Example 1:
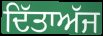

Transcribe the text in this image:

ਦਿੱਤਾਅੱਜ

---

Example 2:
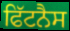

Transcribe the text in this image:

ਫਿੱਟਨੈਸ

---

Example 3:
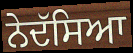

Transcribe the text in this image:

ਨੇਦੱਸਿਆ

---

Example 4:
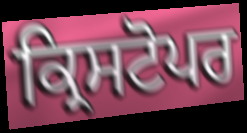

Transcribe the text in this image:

ਕ੍ਰਿਸਟੋਪਰ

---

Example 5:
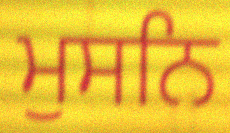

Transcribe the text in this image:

ਮੁਸਨਿ